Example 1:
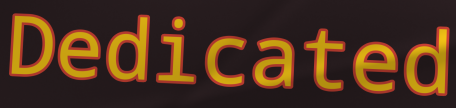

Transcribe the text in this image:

Dedicated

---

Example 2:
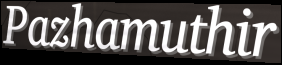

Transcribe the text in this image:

Pazhamuthir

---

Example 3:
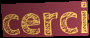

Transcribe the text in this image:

cerci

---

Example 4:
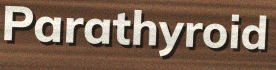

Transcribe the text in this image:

Parathyroid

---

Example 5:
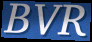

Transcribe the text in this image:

BVR